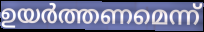
ഉയർത്തണമെന്ന്